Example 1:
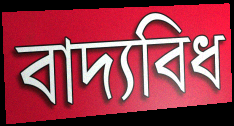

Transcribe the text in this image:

বাদ্যবিধ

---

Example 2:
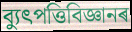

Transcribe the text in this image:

ব্যুৎপত্তিবিজ্ঞানৰ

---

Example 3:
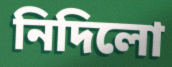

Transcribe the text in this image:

নিদিলো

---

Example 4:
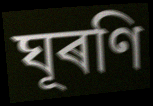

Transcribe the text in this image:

ঘূৰণি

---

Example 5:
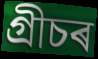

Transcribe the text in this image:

গ্ৰীচৰ